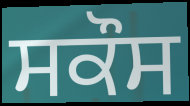
ਸਕੌਸ